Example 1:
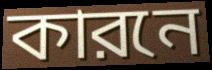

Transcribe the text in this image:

কারনে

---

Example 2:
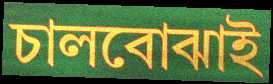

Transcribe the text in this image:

চালবোঝাই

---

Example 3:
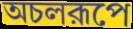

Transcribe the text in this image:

অচলরূপে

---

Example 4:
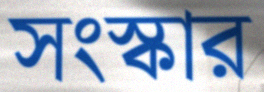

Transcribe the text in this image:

সংস্কার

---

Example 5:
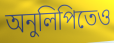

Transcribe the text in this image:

অনুলিপিতেও